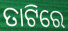
ତାଟିରେ